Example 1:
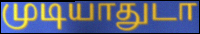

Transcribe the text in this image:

முடியாதுடா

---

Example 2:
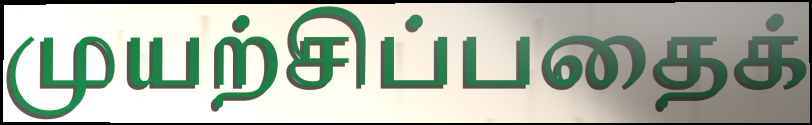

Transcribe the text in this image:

முயற்சிப்பதைக்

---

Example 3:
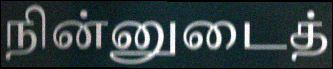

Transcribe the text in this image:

நின்னுடைத்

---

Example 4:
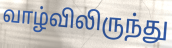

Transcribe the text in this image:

வாழ்விலிருந்து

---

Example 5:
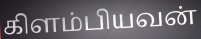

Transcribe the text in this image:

கிளம்பியவன்